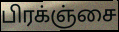
பிரக்ஞ்சை